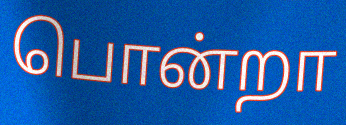
பொன்றா